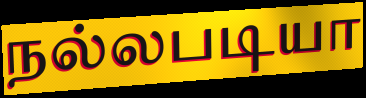
நல்லபடியா